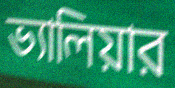
ভ্যালিয়ার